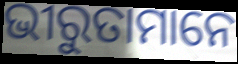
ଭୀରୁତାମାନେ